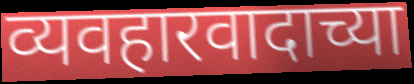
व्यवहारवादाच्या